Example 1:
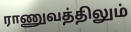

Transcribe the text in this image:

ராணுவத்திலும்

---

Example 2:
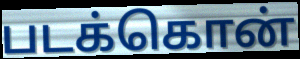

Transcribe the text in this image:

படக்கொன்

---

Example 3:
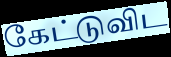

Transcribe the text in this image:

கேட்டுவிட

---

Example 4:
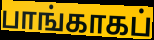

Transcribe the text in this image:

பாங்காகப்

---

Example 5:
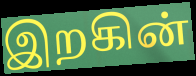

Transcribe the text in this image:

இறகின்